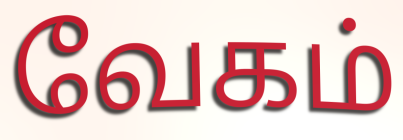
வேகம்